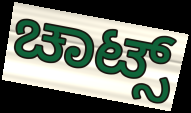
ಚಾಟ್ಸ್